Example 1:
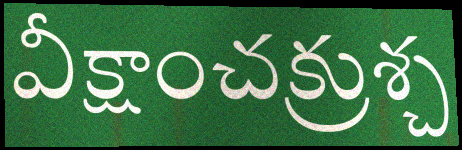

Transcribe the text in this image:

వీక్షాంచక్రుశ్చ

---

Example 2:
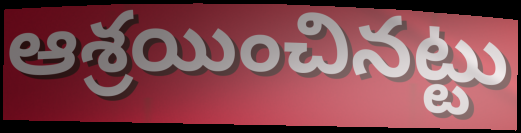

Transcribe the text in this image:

ఆశ్రయించినట్టు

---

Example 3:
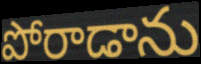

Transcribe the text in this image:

పోరాడాను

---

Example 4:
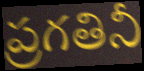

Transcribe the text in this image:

ప్రగతినీ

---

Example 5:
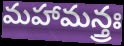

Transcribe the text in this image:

మహామన్త్రః